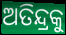
ଅତିନ୍ଦ୍ରକୁ